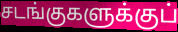
சடங்குகளுக்குப்